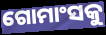
ଗୋମାଂସକୁ